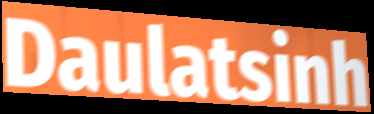
Daulatsinh